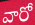
వారో